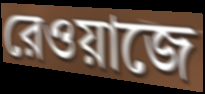
রেওয়াজে